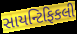
સાયન્ટિફિકલી